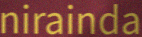
nirainda